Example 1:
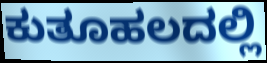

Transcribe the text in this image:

ಕುತೂಹಲದಲ್ಲಿ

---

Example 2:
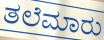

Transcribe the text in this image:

ತಲೆಮಾರು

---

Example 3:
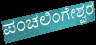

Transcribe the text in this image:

ಪಂಚಲಿಂಗೇಶ್ವರ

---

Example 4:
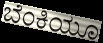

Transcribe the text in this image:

ಬೆಂಕಿಯೂ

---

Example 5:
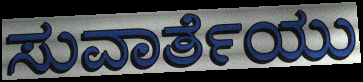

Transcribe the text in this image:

ಸುವಾರ್ತೆಯು